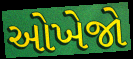
ઓખેજો